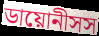
ডায়োনীসস